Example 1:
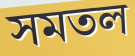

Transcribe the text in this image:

সমতল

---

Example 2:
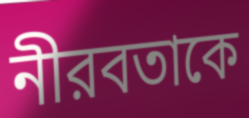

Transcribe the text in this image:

নীরবতাকে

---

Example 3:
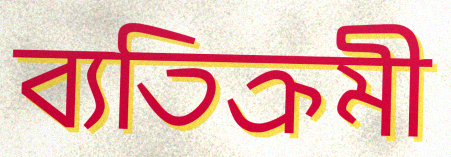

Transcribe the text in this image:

ব্যতিক্রমী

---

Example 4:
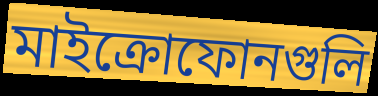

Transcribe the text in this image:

মাইক্রোফোনগুলি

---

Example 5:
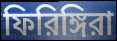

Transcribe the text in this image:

ফিরিঙ্গিরা